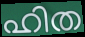
ഹിത